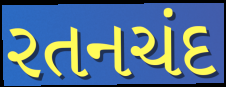
રતનચંદ